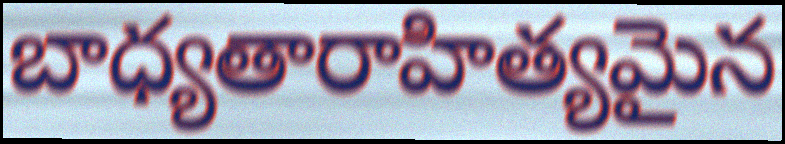
బాధ్యతారాహిత్యమైన